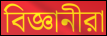
বিজ্ঞানীরা